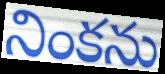
నింకను